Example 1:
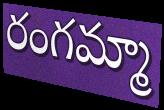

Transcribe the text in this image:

రంగమ్మా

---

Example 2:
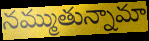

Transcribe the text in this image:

నమ్ముతున్నామా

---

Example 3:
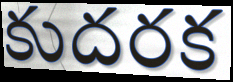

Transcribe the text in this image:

కుదరక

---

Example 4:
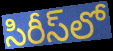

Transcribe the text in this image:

సిరీస్‌లో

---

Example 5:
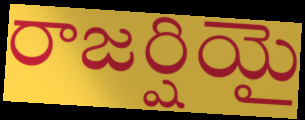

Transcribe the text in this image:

రాజర్షియై